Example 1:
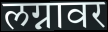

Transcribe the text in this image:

लग्नावर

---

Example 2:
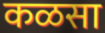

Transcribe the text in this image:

कळसा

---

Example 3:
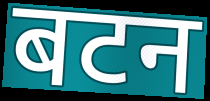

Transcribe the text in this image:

बटन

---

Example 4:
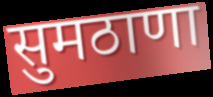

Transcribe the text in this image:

सुमठाणा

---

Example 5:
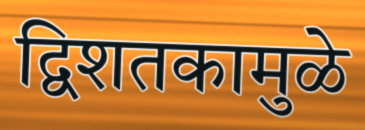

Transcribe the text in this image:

द्विशतकामुळे